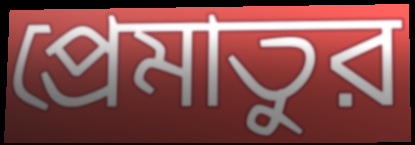
প্রেমাতুর